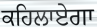
ਕਹਿਲਾਏਗਾ